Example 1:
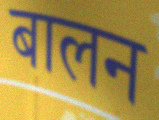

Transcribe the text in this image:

बालन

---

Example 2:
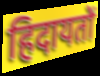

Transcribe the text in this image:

हिदायतों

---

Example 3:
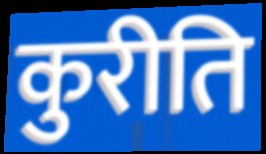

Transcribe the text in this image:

कुरीति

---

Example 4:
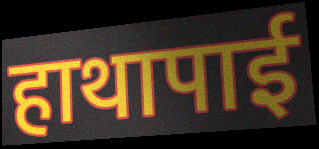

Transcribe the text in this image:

हाथापाई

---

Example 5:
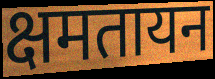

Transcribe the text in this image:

क्षमतायन